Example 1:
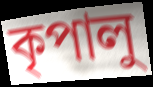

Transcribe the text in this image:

কৃপালু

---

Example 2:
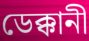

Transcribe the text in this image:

ডেক্কানী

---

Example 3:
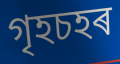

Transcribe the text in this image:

গৃহচহৰ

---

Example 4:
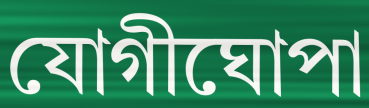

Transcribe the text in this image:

যোগীঘোপা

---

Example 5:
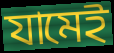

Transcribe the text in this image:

যামেই